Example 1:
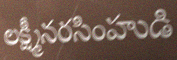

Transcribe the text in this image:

లక్ష్మీనరసింహుడి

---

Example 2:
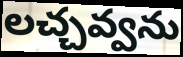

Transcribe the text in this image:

లచ్చవ్వను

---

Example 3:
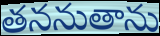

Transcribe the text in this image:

తననుతాను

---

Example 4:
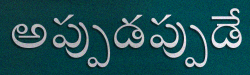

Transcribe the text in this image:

అప్పుడప్పుడే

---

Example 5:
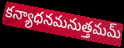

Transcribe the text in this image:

కన్యాధనమనుత్తమమ్